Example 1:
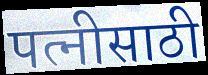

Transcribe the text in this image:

पत्नीसाठी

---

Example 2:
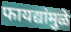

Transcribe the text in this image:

फायद्यांमुळे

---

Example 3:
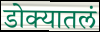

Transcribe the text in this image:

डोक्यातलं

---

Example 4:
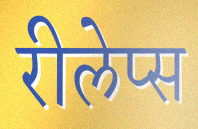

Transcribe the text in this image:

रीलेप्स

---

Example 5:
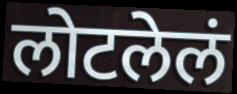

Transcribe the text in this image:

लोटलेलं